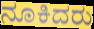
ನೂಕಿದರು